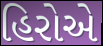
હિરોએ